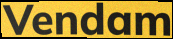
Vendam